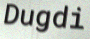
Dugdi